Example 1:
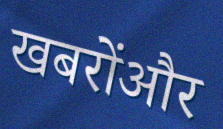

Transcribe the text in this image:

खबरोंऔर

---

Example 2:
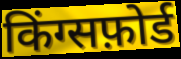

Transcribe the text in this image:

किंग्सफ़ोर्ड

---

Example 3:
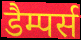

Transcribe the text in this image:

डैम्पर्स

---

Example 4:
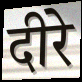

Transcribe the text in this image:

दीरे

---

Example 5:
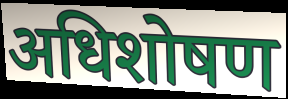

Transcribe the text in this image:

अधिशोषण